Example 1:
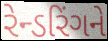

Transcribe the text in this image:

રેન્ડરિંગને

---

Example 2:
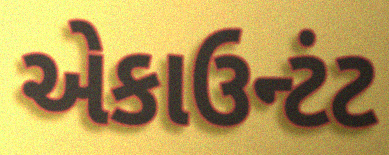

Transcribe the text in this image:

એકાઉન્ટંટ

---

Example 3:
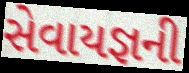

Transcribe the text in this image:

સેવાયજ્ઞની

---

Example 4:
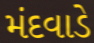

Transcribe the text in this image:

મંદવાડે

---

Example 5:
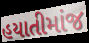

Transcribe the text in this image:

હયાતીમાંજ